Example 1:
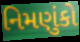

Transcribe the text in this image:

નિમણુંકો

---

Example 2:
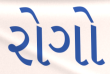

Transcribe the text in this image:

રોગો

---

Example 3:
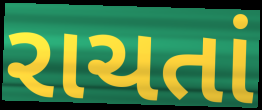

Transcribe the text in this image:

રાચતાં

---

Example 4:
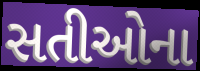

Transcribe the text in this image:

સતીઓના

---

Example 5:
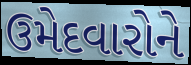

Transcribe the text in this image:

ઉમેદવારોને